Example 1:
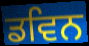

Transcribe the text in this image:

ਡਵਿਨ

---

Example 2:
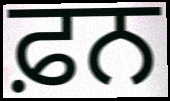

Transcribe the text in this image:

ਫ਼ਨ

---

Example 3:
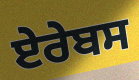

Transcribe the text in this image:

ਏਰੇਬਸ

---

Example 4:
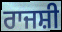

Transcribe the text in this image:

ਰਾਜਸ਼ੀ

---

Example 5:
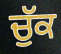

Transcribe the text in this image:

ਚੁੱਕ